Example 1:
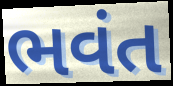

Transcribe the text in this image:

ભવંત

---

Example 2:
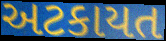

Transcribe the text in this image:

અટકાયત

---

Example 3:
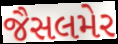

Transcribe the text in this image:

જૈસલમેર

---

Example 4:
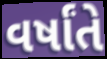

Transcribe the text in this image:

વર્ષાંતે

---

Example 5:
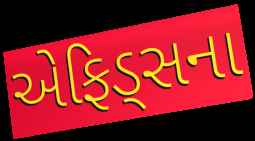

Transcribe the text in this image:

એફિડ્સના